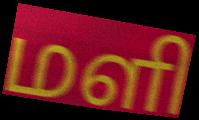
மளி